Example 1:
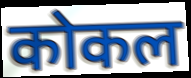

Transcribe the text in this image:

कोकल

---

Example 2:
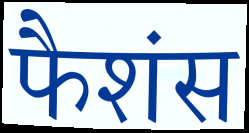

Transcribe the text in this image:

फैशंस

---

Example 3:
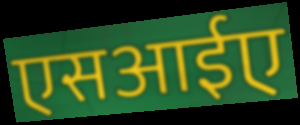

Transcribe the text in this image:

एसआईए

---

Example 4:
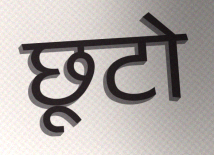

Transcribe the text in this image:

छूटो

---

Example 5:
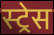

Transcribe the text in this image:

स्ट्रेस